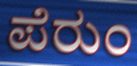
ಪೆರುಂ